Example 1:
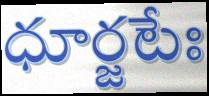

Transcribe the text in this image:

ధూర్జటేః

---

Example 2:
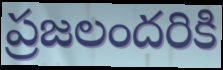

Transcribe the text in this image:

ప్రజలందరికి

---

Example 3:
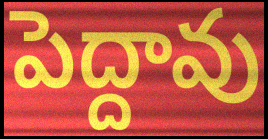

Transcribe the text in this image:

పెద్దావు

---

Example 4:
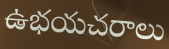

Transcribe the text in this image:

ఉభయచరాలు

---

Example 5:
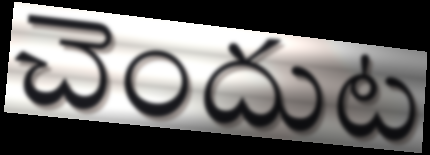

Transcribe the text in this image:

చెందుట